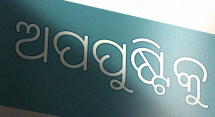
ଅପପୁଷ୍ଟିକୁ